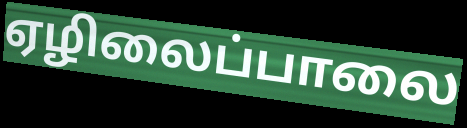
ஏழிலைப்பாலை